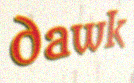
dawk